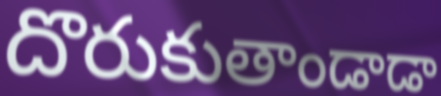
దొరుకుతాండాడా